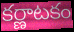
కర్ణాటకం